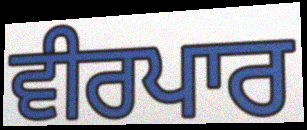
ਵੀਰਪਾਰ